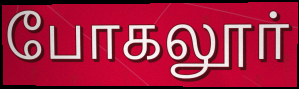
போகலூர்